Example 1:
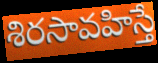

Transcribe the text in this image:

శిరసావహిస్తే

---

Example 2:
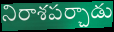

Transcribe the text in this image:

నిరాశపర్చాడు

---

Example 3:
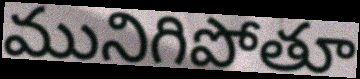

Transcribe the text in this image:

మునిగిపోతూ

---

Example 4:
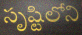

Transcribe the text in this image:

సృష్టిలోని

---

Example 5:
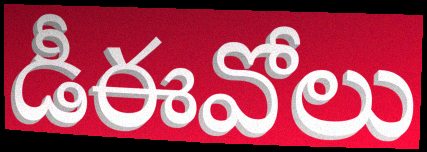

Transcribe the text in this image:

డీఈవోలు